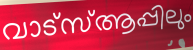
വാട്സ്ആപ്പിലും